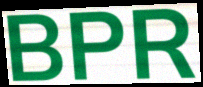
BPR